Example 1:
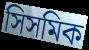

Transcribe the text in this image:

সিসমিক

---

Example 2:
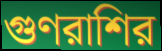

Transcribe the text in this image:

গুণরাশির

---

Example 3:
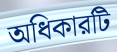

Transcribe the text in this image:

অধিকারটি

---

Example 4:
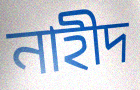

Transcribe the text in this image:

নাহীদ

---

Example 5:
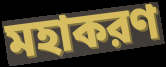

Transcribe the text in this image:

মহাকরণ